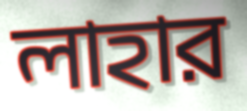
লাহার